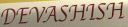
DEVASHISH